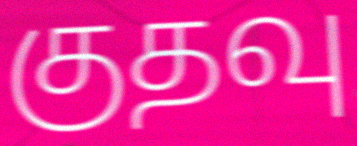
குதவு